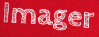
Imager